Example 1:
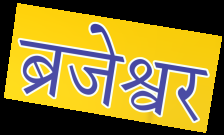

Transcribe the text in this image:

ब्रजेश्वर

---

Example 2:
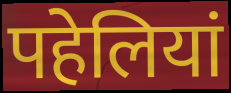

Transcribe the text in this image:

पहेलियां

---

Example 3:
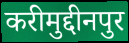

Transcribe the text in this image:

करीमुद्दीनपुर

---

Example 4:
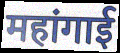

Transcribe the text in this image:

महांगाई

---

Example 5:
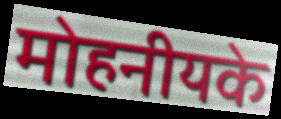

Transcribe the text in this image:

मोहनीयके